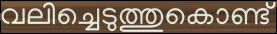
വലിച്ചെടുത്തുകൊണ്ട്